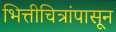
भित्तीचित्रांपासून